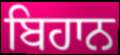
ਬਿਹਾਨ